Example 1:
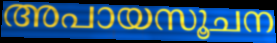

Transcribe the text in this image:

അപായസൂചന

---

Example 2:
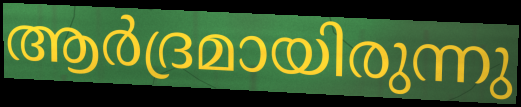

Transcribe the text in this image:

ആർദ്രമായിരുന്നു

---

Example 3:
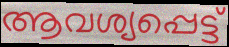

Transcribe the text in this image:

ആവശ്യപ്പെട്ട്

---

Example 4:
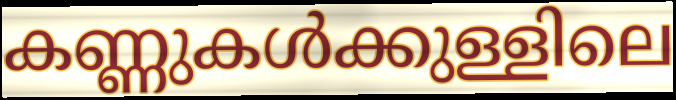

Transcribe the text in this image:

കണ്ണുകൾക്കുള്ളിലെ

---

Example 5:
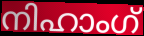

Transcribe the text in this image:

നിഹാംഗ്